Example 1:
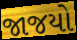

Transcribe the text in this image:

જાજયો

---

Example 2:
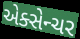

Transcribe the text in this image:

એક્સેન્ચર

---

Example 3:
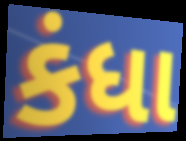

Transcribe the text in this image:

કંધા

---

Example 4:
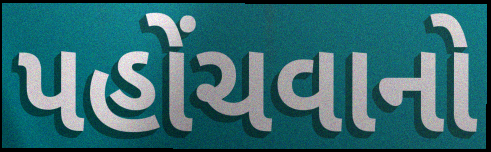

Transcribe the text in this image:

પહોંચવાનો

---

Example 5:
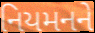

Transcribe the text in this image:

નિયમનને